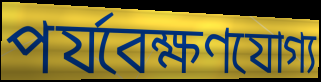
পর্যবেক্ষণযোগ্য